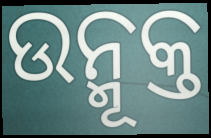
ଉନ୍ମୂକ୍ତ